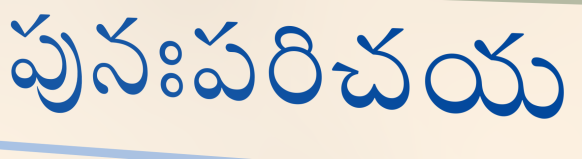
పునఃపరిచయ